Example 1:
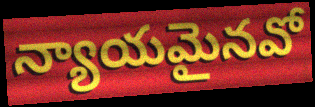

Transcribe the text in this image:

న్యాయమైనవో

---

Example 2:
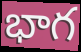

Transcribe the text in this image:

భాగ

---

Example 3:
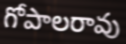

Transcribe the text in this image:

గోపాలరావు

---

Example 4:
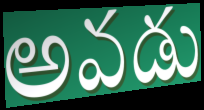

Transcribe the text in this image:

అవడు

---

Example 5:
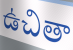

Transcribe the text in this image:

ఉచితా